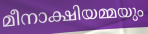
മീനാക്ഷിയമ്മയും